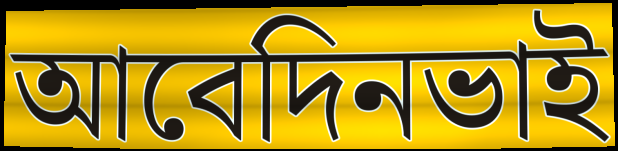
আবেদিনভাই